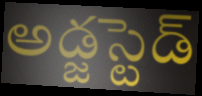
అడ్జస్టెడ్